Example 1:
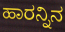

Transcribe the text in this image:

ಹಾರನ್ನಿನ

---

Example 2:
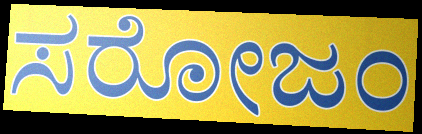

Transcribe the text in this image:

ಸರೋಜಂ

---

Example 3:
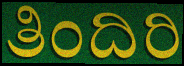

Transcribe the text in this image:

ತಿಂದಿರಿ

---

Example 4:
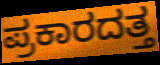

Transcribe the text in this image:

ಪ್ರಕಾರದತ್ತ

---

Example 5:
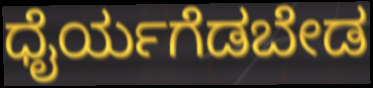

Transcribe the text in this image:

ಧೈರ್ಯಗೆಡಬೇಡ